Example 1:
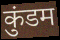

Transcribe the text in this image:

कुंडम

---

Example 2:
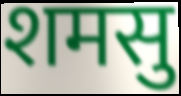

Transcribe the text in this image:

शमसु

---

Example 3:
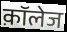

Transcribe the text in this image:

क़ॉलेज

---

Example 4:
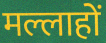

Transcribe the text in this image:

मल्लाहों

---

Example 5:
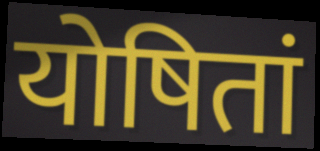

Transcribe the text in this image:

योषितां